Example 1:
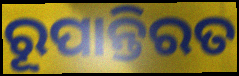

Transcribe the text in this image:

ରୂପାନ୍ତିରତ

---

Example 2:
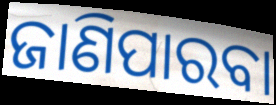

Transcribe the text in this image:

ଜାଣିପାରବା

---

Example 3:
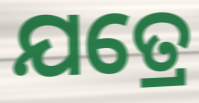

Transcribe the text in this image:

ଯତ୍ରେ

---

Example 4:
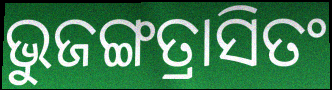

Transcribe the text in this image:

ଭୁଜଙ୍ଗତ୍ରାସିତଂ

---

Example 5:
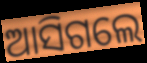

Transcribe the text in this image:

ଆସିଗଲେ